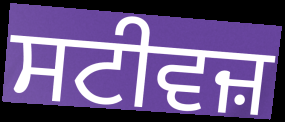
ਸਟੀਵਜ਼